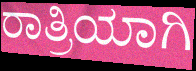
ರಾತ್ರಿಯಾಗಿ